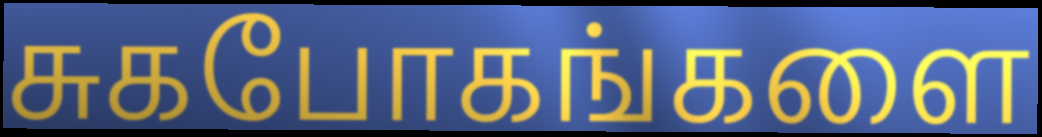
சுகபோகங்களை